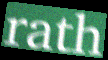
rath